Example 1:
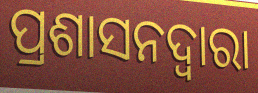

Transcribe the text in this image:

ପ୍ରଶାସନଦ୍ୱାରା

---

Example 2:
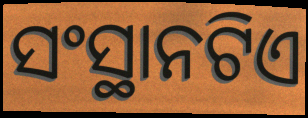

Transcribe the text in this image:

ସଂସ୍ଥାନଟିଏ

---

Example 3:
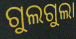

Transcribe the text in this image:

ଗୁଲଗୁଲା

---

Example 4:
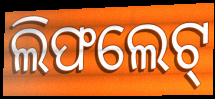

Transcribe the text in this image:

ଲିଫଲେଟ୍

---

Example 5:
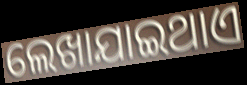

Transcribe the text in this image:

ଲେଖାଯାଇଥାଏ